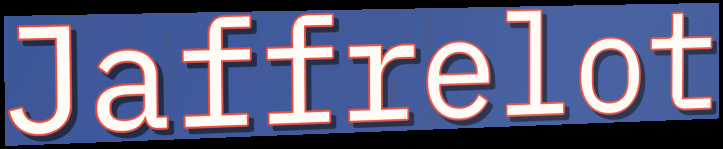
Jaffrelot